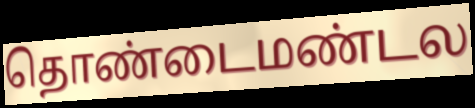
தொண்டைமண்டல